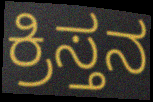
ಕ್ರಿಸ್ತನ